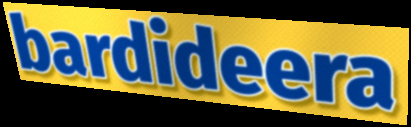
bardideera